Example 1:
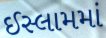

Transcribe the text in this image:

ઈસ્લામમાં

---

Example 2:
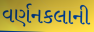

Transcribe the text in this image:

વર્ણનકલાની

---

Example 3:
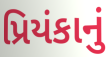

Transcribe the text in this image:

પ્રિયંકાનું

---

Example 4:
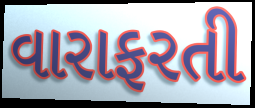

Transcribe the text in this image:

વારાફરતી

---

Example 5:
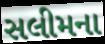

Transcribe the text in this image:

સલીમના